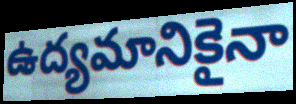
ఉద్యమానికైనా